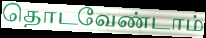
தொடவேண்டாம்